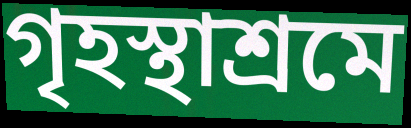
গৃহস্থাশ্রমে